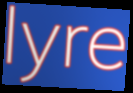
Iyre